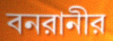
বনরানীর